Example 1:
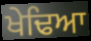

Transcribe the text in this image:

ਖੇਢਿਆ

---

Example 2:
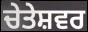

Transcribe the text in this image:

ਚੇਤੇਸ਼ਵਰ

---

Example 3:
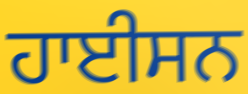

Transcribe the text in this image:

ਹਾਈਸਨ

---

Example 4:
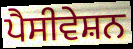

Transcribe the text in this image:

ਪੈਸੀਵੇਸ਼ਨ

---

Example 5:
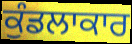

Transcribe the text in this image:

ਕੁੰਡਲਾਕਾਰ